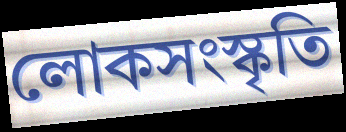
লোকসংস্কৃতি